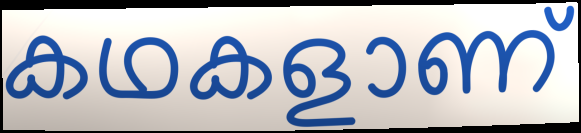
കഥകളാണ്